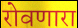
रोवणारा